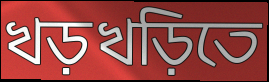
খড়খড়িতে